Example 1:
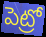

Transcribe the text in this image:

పెట్రో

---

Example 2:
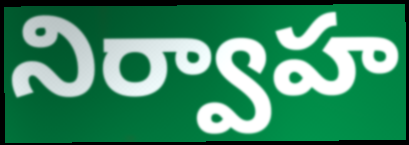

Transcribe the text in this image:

నిర్వాహ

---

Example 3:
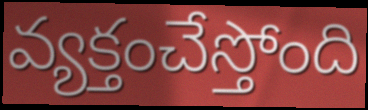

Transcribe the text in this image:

వ్యక్తంచేస్తోంది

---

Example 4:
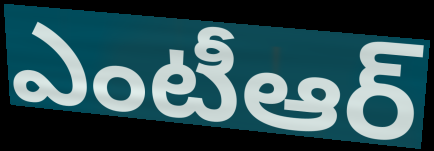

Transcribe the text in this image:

ఎంటీఆర్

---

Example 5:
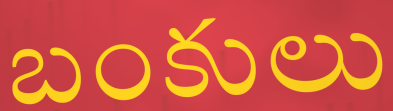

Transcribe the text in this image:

బంకులు